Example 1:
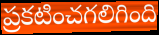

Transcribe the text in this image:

ప్రకటించగలిగింది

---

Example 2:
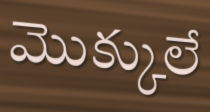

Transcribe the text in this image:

మొక్కులే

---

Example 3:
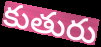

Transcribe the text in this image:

కుతురు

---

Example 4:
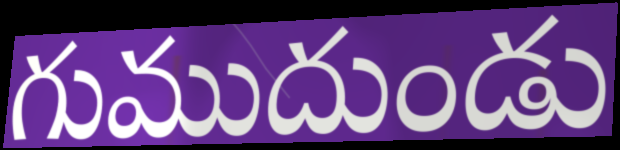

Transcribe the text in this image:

గుముదుండు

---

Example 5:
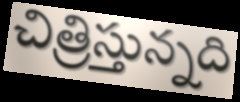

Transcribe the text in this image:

చిత్రిస్తున్నది